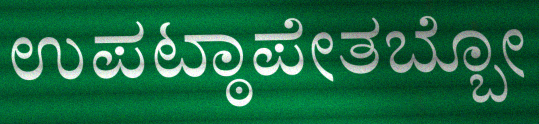
ಉಪಟ್ಠಾಪೇತಬ್ಬೋ